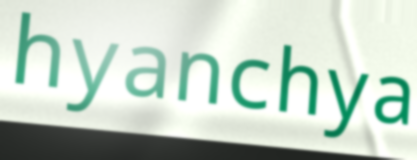
hyanchya